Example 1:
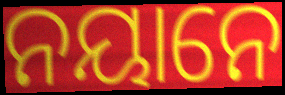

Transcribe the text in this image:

ନୟାନେ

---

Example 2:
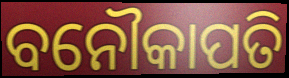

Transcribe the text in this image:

ବନୌକାପତି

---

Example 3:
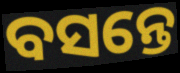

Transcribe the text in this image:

ବସନ୍ତେ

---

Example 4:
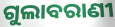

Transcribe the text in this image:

ଗୁଲାବରାଣୀ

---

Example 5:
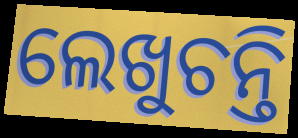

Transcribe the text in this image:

ଲେଖୁଚନ୍ତି